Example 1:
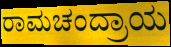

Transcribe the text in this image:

ರಾಮಚಂದ್ರಾಯ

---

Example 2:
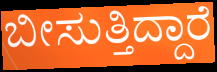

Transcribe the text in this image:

ಬೀಸುತ್ತಿದ್ದಾರೆ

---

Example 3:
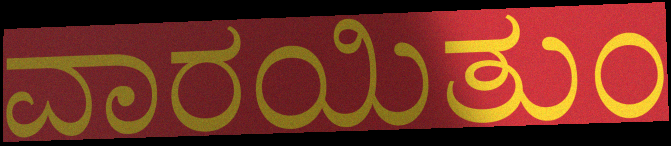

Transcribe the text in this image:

ವಾರಯಿತುಂ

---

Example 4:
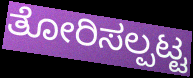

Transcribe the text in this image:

ತೋರಿಸಲ್ಪಟ್ಟ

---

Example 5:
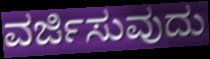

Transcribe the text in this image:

ವರ್ಜಿಸುವುದು